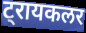
ट्रायकलर